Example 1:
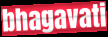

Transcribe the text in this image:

bhagavati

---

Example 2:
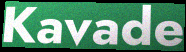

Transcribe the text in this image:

Kavade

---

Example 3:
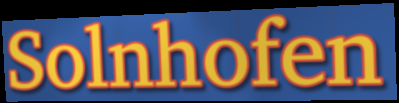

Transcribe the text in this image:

Solnhofen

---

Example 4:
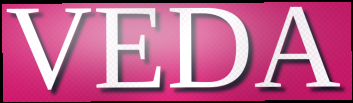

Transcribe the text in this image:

VEDA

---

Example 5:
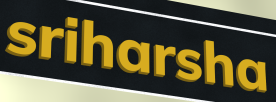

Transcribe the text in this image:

sriharsha